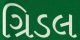
ગ્રિડલ